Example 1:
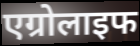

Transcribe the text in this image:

एग्रोलाइफ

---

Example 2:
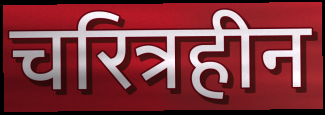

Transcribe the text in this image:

चरित्रहीन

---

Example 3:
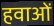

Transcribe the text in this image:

हवाओं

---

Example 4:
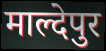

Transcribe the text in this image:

माल्देपुर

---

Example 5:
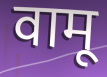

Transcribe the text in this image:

वामू